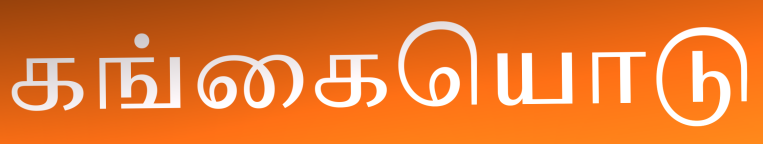
கங்கையொடு